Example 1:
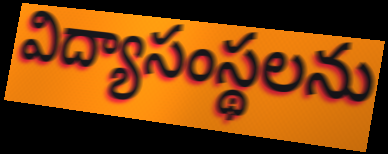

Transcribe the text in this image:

విద్యాసంస్థలను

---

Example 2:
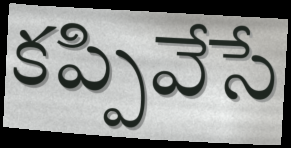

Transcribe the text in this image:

కప్పివేసే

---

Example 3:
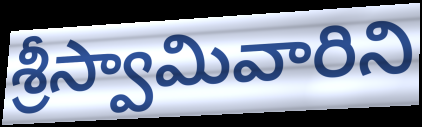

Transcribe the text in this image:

శ్రీస్వామివారిని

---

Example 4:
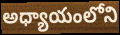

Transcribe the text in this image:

అధ్యాయంలోని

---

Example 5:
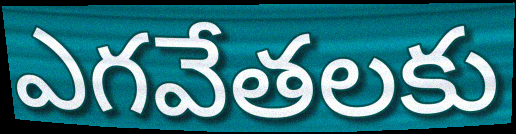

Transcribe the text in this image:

ఎగవేతలకు